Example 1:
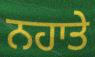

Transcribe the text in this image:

ਨਹਾਤੇ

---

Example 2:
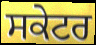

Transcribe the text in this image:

ਸਕੇਟਰ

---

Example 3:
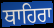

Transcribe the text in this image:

ਥਾਹਿਰਾ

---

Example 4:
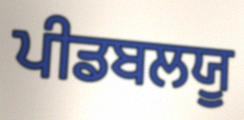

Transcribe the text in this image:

ਪੀਡਬਲਯੂ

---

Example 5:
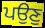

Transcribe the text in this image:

ਪਉਣੁ